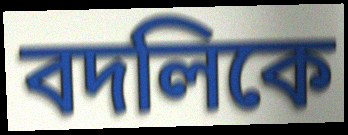
বদলিকে